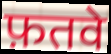
फ़तवे